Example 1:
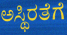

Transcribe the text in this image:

ಅಸ್ಥಿರತೆಗೆ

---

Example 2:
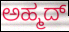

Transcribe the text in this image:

ಅಹ್ಮದ್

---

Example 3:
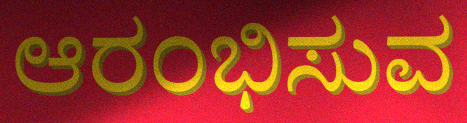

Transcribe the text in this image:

ಆರಂಭಿಸುವ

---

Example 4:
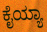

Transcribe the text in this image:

ಕೈಯ್ಯಾ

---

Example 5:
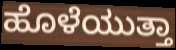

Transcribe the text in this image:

ಹೊಳೆಯುತ್ತಾ